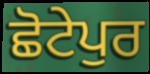
ਛੋਟੇਪੁਰ